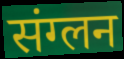
संग्लन